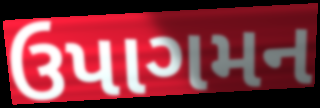
ઉપાગમન